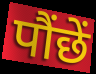
पौंछें